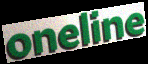
oneline